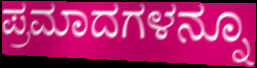
ಪ್ರಮಾದಗಳನ್ನೂ